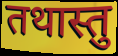
तथास्तु